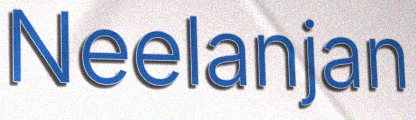
Neelanjan